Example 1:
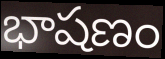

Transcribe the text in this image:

భాషణం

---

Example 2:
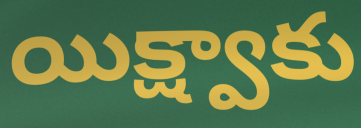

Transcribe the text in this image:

యిక్ష్వాకు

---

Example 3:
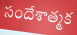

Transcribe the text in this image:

సందేశాత్మక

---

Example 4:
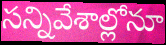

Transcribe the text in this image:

సన్నివేశాల్లోనూ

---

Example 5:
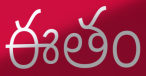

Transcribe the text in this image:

ఈతం